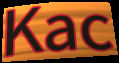
Kac